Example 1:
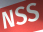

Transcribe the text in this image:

NSS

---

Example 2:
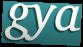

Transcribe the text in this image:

gya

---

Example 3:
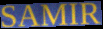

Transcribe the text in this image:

SAMIR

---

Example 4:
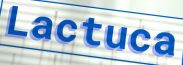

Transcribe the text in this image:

Lactuca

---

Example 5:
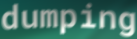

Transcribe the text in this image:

dumping